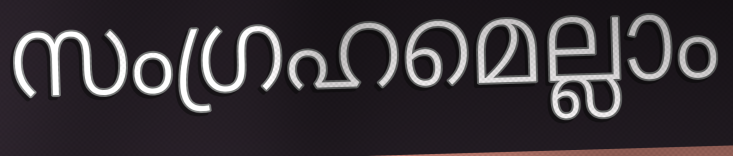
സംഗ്രഹമെല്ലാം